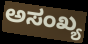
ಅಸಂಖ್ಯ